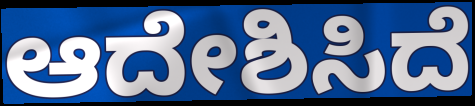
ಆದೇಶಿಸಿದೆ